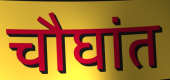
चौघांत